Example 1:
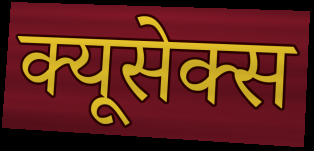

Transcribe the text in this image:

क्यूसेक्स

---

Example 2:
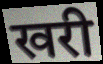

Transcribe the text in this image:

खरी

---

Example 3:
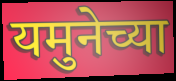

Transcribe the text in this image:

यमुनेच्या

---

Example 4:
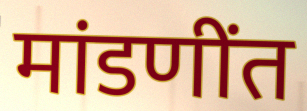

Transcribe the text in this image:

मांडणींत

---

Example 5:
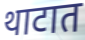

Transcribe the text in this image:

थाटात